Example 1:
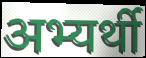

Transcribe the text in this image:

अभ्यर्थी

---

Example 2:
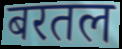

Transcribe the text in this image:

बरतल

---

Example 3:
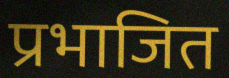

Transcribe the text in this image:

प्रभाजित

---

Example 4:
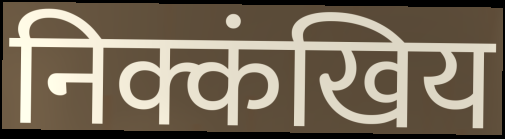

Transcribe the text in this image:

निक्कंखिय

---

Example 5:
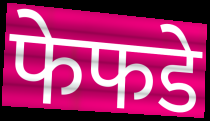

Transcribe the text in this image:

फेफडे